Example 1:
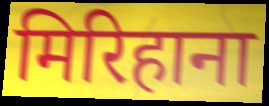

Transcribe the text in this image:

मिरिहाना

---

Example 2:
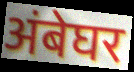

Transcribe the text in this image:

अंबेघर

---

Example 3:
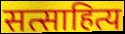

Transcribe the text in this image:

सत्साहित्य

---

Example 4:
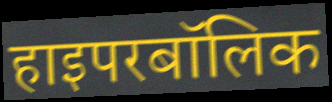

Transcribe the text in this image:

हाइपरबॉलिक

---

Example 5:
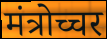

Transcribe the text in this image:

मंत्रोच्चर